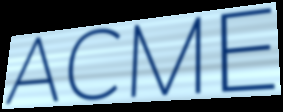
ACME